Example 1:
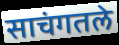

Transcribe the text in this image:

साचंगतले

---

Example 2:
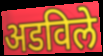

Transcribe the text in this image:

अडविले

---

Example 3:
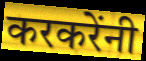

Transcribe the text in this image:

करकरेंनी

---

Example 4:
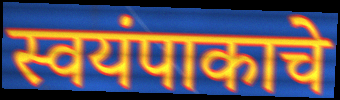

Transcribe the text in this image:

स्वयंपाकाचे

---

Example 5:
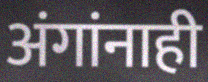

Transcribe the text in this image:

अंगांनाही